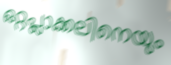
ഒറ്റപ്ലാക്കലിനെയും